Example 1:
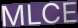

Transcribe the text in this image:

MLCE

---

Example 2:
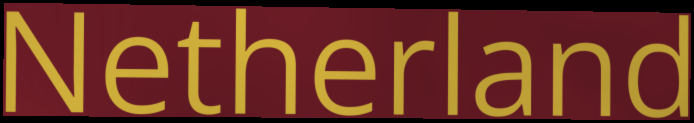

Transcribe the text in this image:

Netherland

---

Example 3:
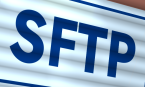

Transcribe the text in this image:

SFTP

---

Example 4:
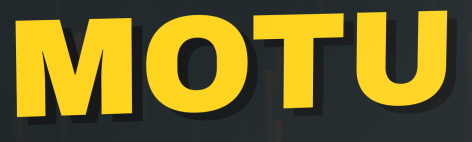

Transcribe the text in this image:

MOTU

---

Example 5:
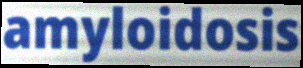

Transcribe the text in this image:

amyloidosis